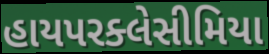
હાયપરક્લેસીમિયા